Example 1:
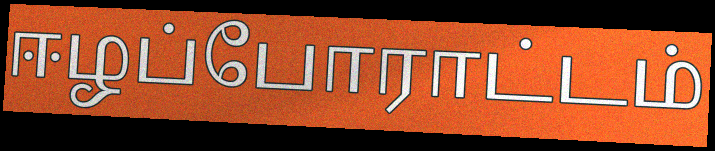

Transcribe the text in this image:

ஈழப்போராட்டம்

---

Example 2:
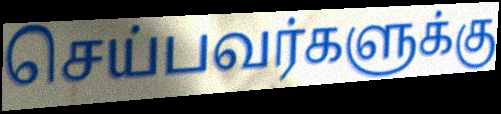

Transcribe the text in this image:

செய்பவர்களுக்கு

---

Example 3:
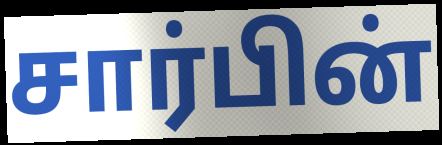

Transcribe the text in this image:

சார்பின்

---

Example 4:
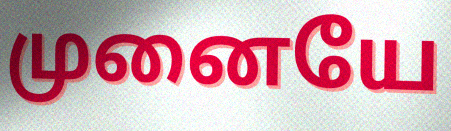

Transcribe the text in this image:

முனையே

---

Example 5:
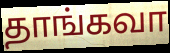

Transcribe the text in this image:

தாங்கவா